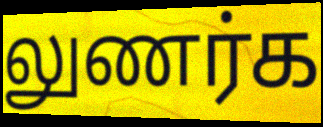
லுணர்க